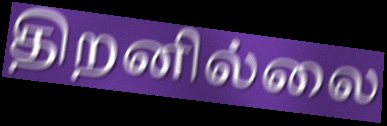
திறனில்லை